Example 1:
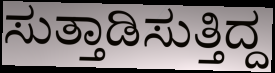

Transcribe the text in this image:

ಸುತ್ತಾಡಿಸುತ್ತಿದ್ದ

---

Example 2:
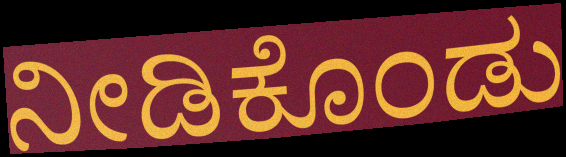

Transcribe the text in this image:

ನೀಡಿಕೊಂಡು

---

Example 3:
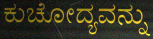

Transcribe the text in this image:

ಕುಚೋದ್ಯವನ್ನು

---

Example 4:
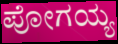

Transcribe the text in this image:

ಪೋಗಯ್ಯ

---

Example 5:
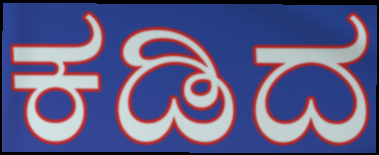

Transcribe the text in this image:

ಕಡಿದ